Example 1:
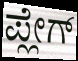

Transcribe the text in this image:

ಪ್ಲೇಗ್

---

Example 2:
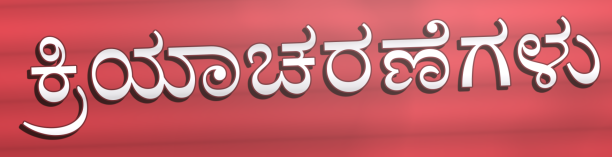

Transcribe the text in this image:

ಕ್ರಿಯಾಚರಣೆಗಳು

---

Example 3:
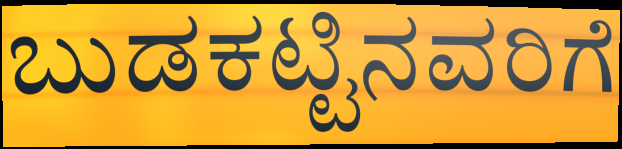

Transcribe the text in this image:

ಬುಡಕಟ್ಟಿನವರಿಗೆ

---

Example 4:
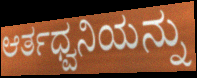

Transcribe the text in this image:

ಆರ್ತಧ್ವನಿಯನ್ನು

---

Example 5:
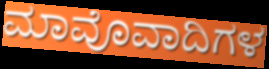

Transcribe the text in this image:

ಮಾವೊವಾದಿಗಳ